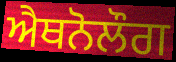
ਐਥਨੋਲੌਗ